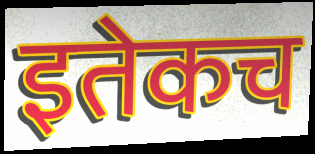
इतेकच